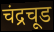
चंद्रचूड